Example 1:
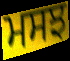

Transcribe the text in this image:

ਮਸਝ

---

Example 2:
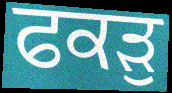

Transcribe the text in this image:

ਫਕੜੁ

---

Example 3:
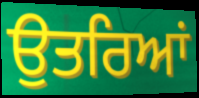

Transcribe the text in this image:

ਉਤਰਿਆਂ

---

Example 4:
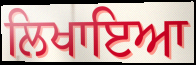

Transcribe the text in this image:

ਲਿਖਾਇਆ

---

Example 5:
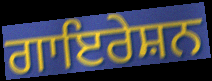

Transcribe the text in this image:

ਗਾਇਰੇਸ਼ਨ